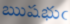
ఋషభుఁ